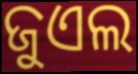
ଜୁଏଲ